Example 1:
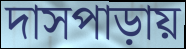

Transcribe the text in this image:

দাসপাড়ায়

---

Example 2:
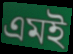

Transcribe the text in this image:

এমই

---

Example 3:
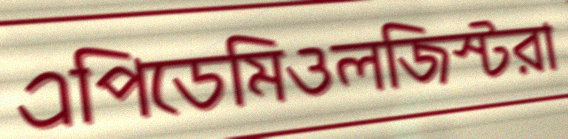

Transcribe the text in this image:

এপিডেমিওলজিস্টরা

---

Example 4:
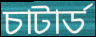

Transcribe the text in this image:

চাটার্ড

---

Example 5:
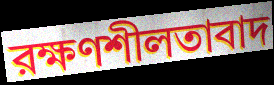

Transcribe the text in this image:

রক্ষণশীলতাবাদ